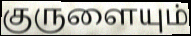
குருளையும்